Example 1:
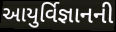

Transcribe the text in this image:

આયુર્વિજ્ઞાનની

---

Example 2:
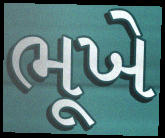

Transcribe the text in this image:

ભૂખે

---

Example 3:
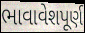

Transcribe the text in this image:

ભાવાવેશપૂર્ણ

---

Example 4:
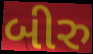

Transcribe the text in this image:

બીરુ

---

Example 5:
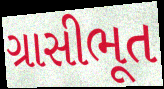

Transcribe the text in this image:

ગ્રાસીભૂત